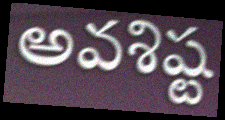
అవశిష్ట